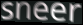
sneer